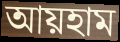
আয়হাম